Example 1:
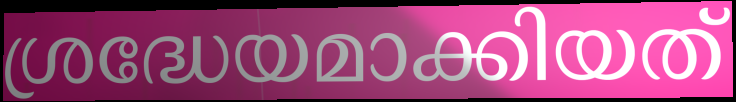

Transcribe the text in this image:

ശ്രദ്ധേയമാക്കിയത്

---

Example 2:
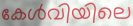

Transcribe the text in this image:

കേൾവിയിലെ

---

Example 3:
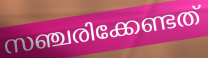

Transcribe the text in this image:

സഞ്ചരിക്കേണ്ടത്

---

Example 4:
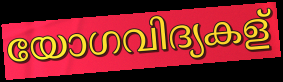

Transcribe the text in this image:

യോഗവിദ്യകള്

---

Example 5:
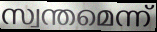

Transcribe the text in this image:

സ്വന്തമെന്ന്